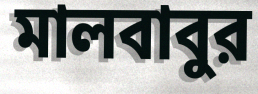
মালবাবুর